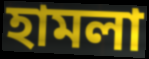
হামলা